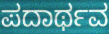
ಪದಾರ್ಥವ